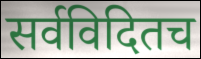
सर्वविदितच